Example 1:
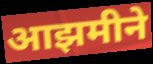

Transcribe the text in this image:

आझमीने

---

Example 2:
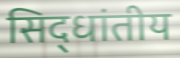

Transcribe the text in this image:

सिद्धांतीय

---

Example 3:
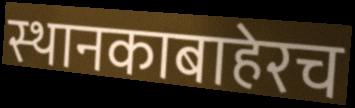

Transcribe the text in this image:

स्थानकाबाहेरच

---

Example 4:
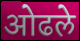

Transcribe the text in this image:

ओढले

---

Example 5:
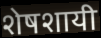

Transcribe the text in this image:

शेषशायी